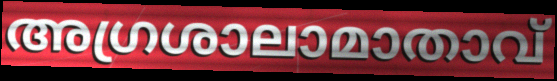
അഗ്രശാലാമാതാവ്